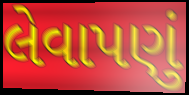
લેવાપણું